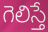
గెలిస్తే